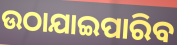
ଉଠାଯାଇପାରିବ